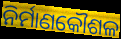
ନିର୍ମାଣକୌଶଳ